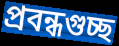
প্রবন্ধগুচ্ছ